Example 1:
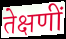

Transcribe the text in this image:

तेक्षणीं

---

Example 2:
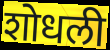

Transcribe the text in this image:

शोधली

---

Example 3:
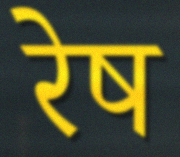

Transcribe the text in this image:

रेष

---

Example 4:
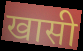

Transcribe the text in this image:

खासी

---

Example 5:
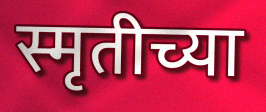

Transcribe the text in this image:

स्मृतीच्या